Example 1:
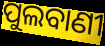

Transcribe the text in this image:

ପୁଲବାଣୀ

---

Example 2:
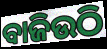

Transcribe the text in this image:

ବାଜିଉଠି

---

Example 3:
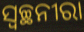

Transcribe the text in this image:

ସ୍ୱଚ୍ଛନୀରା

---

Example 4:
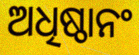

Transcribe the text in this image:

ଅଧିଷ୍ଠାନଂ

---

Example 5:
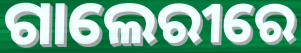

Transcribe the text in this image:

ଗାଲେରୀରେ